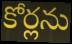
కోర్లను